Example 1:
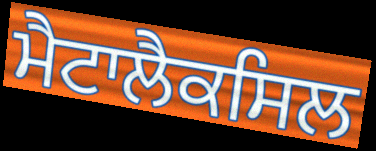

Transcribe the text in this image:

ਮੈਟਾਲੈਕਸਿਲ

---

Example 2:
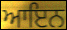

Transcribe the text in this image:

ਆਇਨ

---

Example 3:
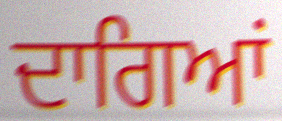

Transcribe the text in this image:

ਦਾਗਿਆਂ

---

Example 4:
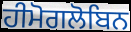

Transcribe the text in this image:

ਹੀਮੋਗਲੋਬਿਨ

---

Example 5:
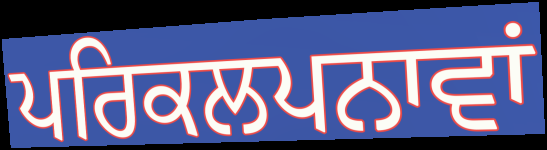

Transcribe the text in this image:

ਪਰਿਕਲਪਨਾਵਾਂ